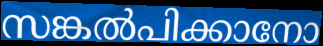
സങ്കൽപിക്കാനോ